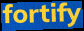
fortify